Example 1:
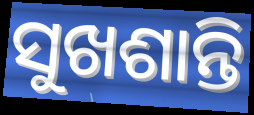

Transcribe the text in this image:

ସୁଖଶାନ୍ତି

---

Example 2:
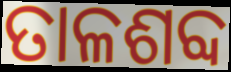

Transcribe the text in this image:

ତାଳଶବ୍ଦ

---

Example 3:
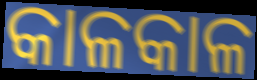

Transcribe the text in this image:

କାଳକାଳ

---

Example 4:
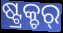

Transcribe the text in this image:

ଷ୍ଟ୍ରକ୍ଚର୍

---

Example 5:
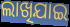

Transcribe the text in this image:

ଲାଖିଯାଇ